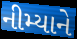
નીમ્યાને